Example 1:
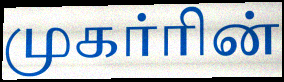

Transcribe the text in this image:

முகர்ரின்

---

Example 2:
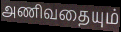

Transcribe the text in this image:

அணிவதையும்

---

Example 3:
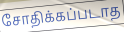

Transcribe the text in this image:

சோதிக்கப்படாத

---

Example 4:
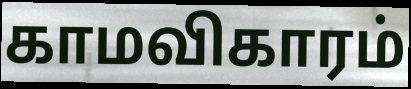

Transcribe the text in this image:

காமவிகாரம்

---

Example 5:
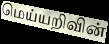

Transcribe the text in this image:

மெய்யறிவின்